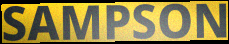
SAMPSON